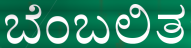
ಬೆಂಬಲಿತ